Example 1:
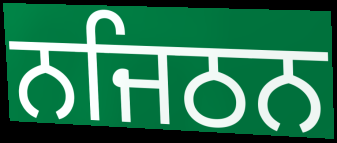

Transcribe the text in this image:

ਨਜਿਠਨ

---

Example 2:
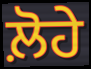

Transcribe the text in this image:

ਲ਼ੋਹੇ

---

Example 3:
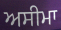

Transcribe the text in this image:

ਅਸੀਮਾ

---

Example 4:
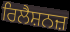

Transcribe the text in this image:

ਰਿਲੈਸ਼ਨਜ਼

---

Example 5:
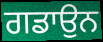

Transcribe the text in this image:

ਗਡਾਉਨ